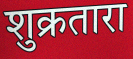
शुक्रतारा